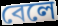
বেলে